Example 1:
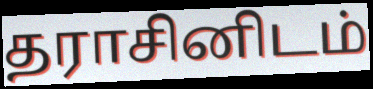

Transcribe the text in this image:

தராசினிடம்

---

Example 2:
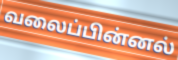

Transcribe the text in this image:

வலைப்பின்னல்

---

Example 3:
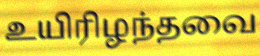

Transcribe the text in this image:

உயிரிழந்தவை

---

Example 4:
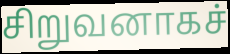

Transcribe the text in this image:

சிறுவனாகச்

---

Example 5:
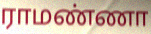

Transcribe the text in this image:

ராமண்ணா